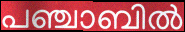
പഞ്ചാബിൽ